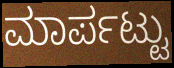
ಮಾರ್ಪಟ್ಟು